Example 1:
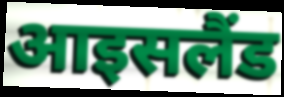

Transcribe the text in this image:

आइसलैंड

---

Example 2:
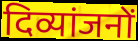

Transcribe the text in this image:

दिव्यांजनों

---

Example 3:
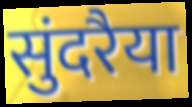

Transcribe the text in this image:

सुंदरैया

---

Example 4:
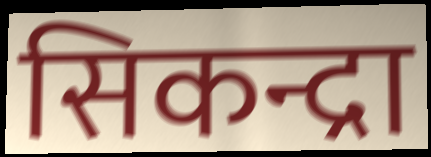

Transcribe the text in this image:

सिकन्द्रा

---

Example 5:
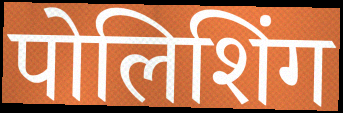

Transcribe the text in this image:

पोलिशिंग